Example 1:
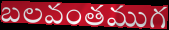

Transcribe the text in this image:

బలవంతముగ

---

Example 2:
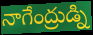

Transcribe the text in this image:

నాగేంద్రుడ్ని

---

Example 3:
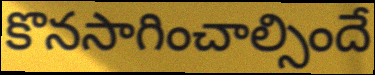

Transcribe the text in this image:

కొనసాగించాల్సిందే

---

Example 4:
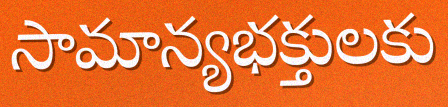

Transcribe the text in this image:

సామాన్యభక్తులకు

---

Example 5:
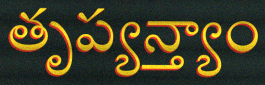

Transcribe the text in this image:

తృప్యన్త్యాం